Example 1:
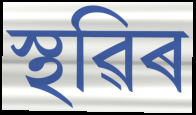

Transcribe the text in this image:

স্থৱিৰ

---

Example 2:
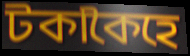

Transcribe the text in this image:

টকাকৈহে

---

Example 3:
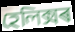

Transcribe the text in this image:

হেলিক্সৰ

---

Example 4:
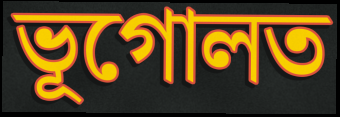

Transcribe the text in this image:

ভূগোলত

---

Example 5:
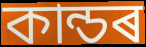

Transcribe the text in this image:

কান্ডৰ